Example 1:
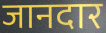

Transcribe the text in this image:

जानदार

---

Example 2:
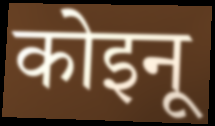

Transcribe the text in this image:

कोइनू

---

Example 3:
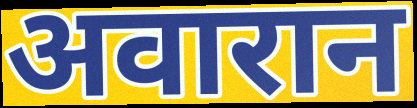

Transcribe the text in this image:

अवारान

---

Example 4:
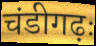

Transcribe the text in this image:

चंडीगढ़ः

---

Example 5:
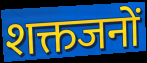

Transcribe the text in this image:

शक्तजनों